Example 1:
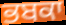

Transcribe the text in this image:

ਭਬਕਾ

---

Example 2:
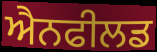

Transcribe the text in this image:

ਐਨਫੀਲਡ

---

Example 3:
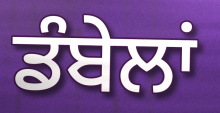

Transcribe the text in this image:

ਡੰਬੇਲਾਂ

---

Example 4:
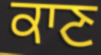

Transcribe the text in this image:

ਕਾਣ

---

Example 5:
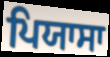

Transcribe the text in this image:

ਪਿਯਾਸਾ